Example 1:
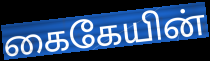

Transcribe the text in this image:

கைகேயின்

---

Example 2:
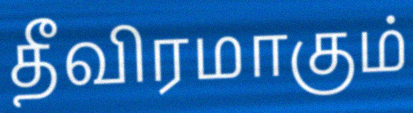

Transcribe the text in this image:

தீவிரமாகும்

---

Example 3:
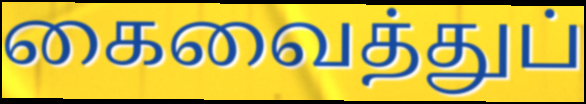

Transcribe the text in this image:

கைவைத்துப்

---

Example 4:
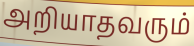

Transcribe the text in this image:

அறியாதவரும்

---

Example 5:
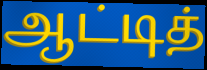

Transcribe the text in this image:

ஆட்டித்